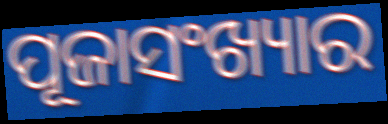
ପୂଜାସଂଖ୍ୟାର